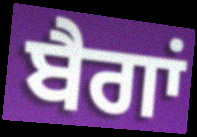
ਬੈਗਾਂ